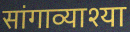
सांगाव्याश्या